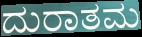
ದುರಾತಮ